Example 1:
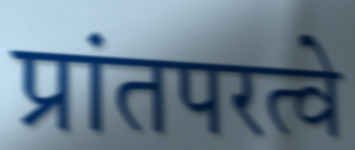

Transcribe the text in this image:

प्रांतपरत्वे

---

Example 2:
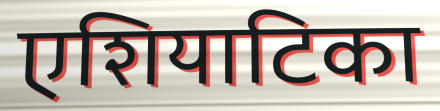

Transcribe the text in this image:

एशियाटिका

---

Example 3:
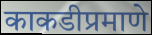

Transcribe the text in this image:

काकडीप्रमाणे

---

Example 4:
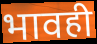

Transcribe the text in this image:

भावही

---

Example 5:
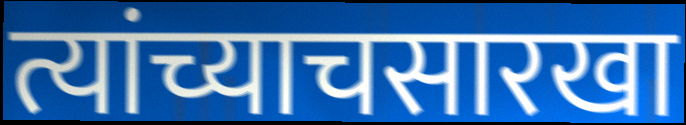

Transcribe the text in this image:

त्यांच्याचसारखा